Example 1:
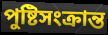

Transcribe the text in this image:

পুষ্টিসংক্রান্ত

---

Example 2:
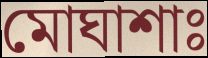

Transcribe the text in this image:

মোঘাশাঃ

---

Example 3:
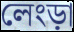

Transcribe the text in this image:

লেংড়া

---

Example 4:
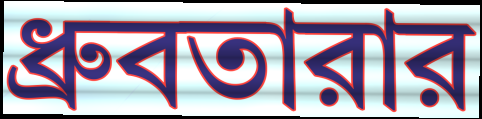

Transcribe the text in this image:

ধ্রুবতারার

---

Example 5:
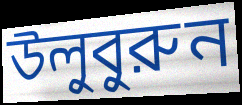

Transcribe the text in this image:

উলুবুরুন